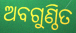
ଅବଗୁଣ୍ଠିତ